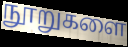
நூறுகளை